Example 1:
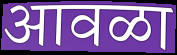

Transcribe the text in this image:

आवळा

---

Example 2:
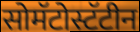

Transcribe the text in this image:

सोमॅटोस्टॅटीन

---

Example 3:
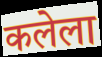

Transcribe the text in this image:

कलेला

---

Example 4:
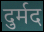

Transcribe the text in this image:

दुर्मद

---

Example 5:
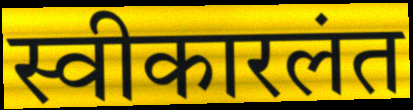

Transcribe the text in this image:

स्वीकारलंत